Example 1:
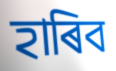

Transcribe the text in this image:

হাৰিব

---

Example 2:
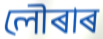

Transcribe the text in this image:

লৌৰাৰ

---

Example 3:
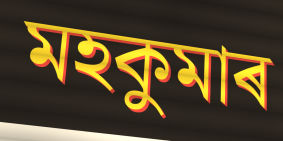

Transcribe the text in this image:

মহকুমাৰ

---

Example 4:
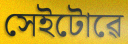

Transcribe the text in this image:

সেইটোৱে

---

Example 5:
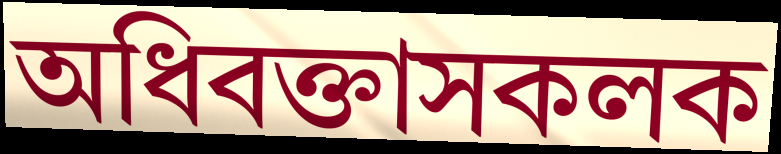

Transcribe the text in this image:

অধিবক্তাসকলক